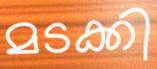
മടക്കി